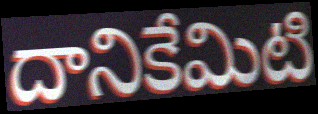
దానికేమిటి